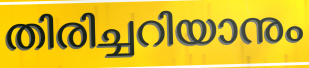
തിരിച്ചറിയാനും